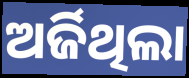
ଅର୍ଜିଥିଲା